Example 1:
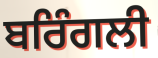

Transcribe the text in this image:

ਬਰਿੰਗਲੀ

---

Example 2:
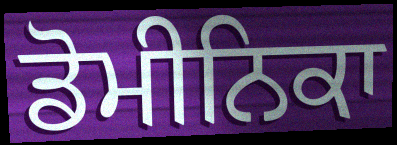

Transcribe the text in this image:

ਡੋਮੀਨਿਕਾ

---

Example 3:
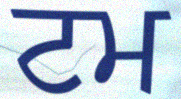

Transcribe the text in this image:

ਟਮ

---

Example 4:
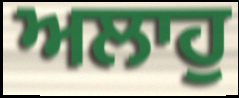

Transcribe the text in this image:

ਅਲਾਹੁ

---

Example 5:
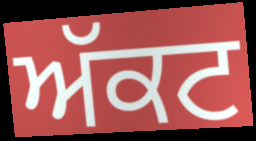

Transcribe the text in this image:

ਅੱਕਟ